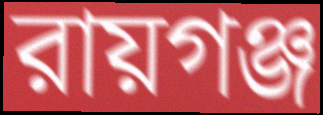
রায়গঞ্জ